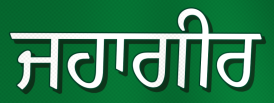
ਜਹਾਗੀਰ